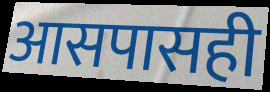
आसपासही